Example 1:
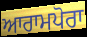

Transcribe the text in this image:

ਆਰਾਮਪੋਰਾ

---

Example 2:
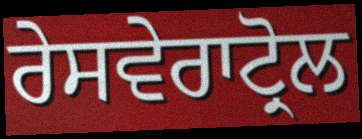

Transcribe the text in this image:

ਰੇਸਵੇਰਾਟ੍ਰੋਲ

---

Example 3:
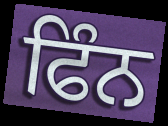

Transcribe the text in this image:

ਫਿੰਨ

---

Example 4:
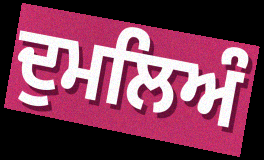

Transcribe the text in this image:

ਦੁਮਲਿਅੰ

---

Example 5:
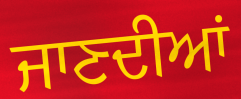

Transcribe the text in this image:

ਜਾਣਦੀਆਂ